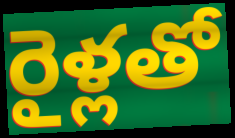
రైళ్లతో